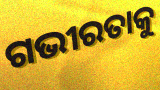
ଗଭୀରତାକୁ